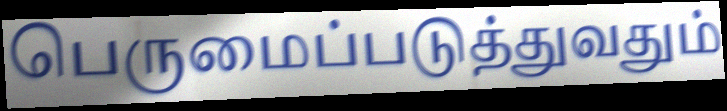
பெருமைப்படுத்துவதும்